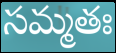
సమ్మతః